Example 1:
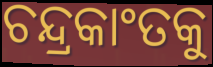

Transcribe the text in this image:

ଚନ୍ଦ୍ରକାଂତକୁ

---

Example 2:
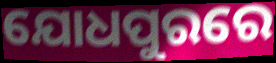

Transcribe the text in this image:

ଯୋଧପୁରରେ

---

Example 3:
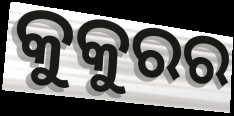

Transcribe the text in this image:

କୁକୁରର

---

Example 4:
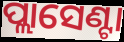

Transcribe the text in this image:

ପ୍ଲାସେଣ୍ଟା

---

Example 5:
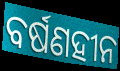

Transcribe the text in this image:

ବର୍ଷଣହୀନ